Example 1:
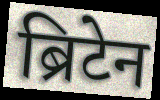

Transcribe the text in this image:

ब्रिटेन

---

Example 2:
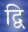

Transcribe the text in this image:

द्वि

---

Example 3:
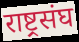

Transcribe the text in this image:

राष्ट्रसंघ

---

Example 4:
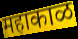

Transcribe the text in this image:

महाकाळ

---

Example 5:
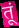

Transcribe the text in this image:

तूं